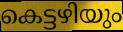
കെട്ടഴിയും